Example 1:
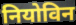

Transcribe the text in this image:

नियोविन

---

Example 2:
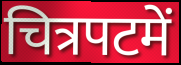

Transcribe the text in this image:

चित्रपटमें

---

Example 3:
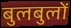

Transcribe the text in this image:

बुलबुलों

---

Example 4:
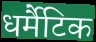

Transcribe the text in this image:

धर्मैटिक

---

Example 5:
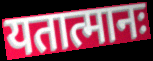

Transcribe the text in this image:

यतात्मानः